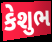
કેશુભ